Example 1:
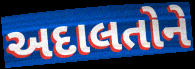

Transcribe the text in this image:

અદાલતોને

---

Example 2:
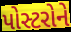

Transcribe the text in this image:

પોસ્ટરોને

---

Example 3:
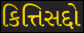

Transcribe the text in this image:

કિત્તિસદ્દો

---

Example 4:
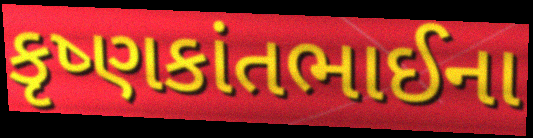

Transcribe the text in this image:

કૃષ્ણકાંતભાઈના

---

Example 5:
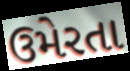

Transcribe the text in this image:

ઉમેરતા